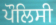
ਪੌਲਿਸੀ